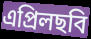
এপ্রিলছবি